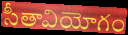
సీతావియోగం